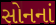
સોનનાં